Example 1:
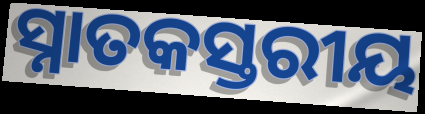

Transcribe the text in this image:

ସ୍ନାତକସ୍ତରୀୟ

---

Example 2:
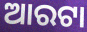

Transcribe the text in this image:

ଆରଟା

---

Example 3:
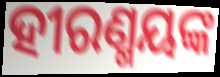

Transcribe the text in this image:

ହୀରଣ୍ମୟଙ୍କ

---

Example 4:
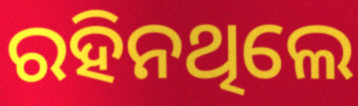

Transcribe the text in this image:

ରହିନଥିଲେ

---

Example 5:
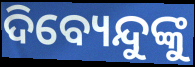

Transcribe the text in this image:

ଦିବ୍ୟେନ୍ଦୁଙ୍କୁ